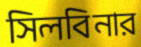
সিলবিনার